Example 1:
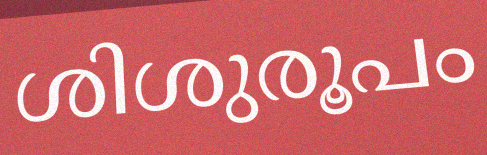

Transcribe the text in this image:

ശിശുരൂപം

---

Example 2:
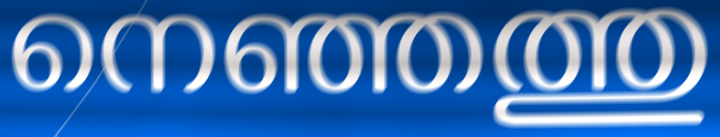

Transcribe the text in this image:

നെഞ്ഞത്തു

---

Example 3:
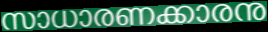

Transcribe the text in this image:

സാധാരണക്കാരനു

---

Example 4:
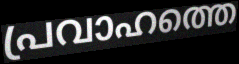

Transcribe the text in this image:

പ്രവാഹത്തെ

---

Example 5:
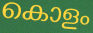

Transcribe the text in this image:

കൊളം